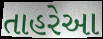
તાહરેઆ